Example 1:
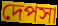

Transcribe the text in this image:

দেপসা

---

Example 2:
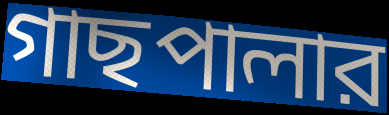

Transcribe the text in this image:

গাছপালার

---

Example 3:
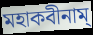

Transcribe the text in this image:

মহাকবীনাম্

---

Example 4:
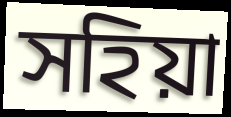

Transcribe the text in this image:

সহিয়া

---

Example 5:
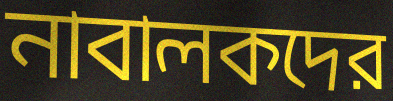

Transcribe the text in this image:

নাবালকদের